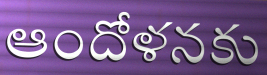
ఆందోళనకు